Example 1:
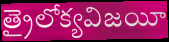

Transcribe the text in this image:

త్రైలోక్యవిజయీ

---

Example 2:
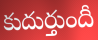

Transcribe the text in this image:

కుదుర్తుందీ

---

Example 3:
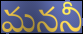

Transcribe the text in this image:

మననీ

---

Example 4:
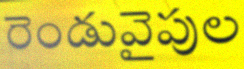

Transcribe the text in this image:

రెండువైపుల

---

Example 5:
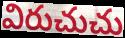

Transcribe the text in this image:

విరుచుచు